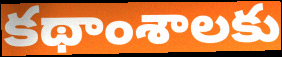
కథాంశాలకు